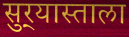
सुर्यास्ताला